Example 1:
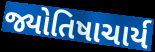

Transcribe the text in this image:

જ્યોતિષાચાર્ય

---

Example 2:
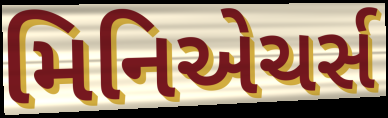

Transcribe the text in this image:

મિનિએચર્સ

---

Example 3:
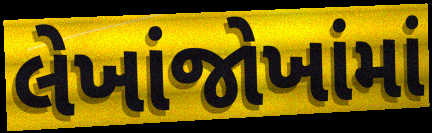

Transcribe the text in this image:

લેખાંજોખાંમાં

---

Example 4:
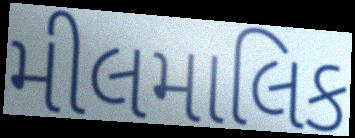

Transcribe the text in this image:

મીલમાલિક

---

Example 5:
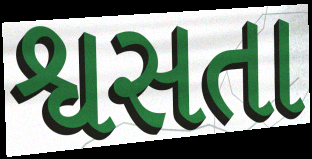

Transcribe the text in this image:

શ્વસતા